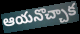
ఆయనొచ్చాక